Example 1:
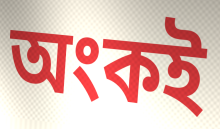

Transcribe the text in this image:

অংকই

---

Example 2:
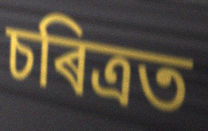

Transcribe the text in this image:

চৰিত্ৰত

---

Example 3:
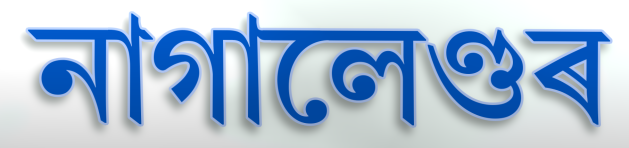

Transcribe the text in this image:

নাগালেণ্ডৰ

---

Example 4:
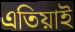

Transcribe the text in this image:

এতিয়াই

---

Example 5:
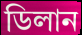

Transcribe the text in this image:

ডিলান